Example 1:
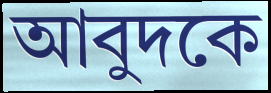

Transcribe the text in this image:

আবুদকে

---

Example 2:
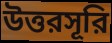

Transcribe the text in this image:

উত্তরসূরি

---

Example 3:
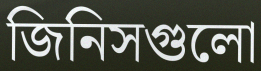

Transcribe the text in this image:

জিনিসগুলো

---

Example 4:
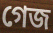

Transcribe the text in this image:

গেজ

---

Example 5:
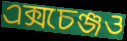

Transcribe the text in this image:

এক্সচেঞ্জও